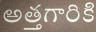
అత్తగారికి